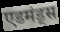
एडमंड्स